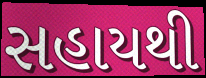
સહાયથી